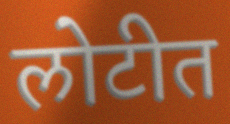
लोटीत